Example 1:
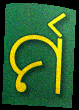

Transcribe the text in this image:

ର୍ମ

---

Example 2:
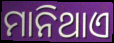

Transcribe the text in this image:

ମାନିଥାଏ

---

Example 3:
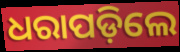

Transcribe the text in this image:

ଧରାପଡ଼ିଲେ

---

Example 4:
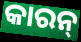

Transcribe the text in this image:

କାରନ୍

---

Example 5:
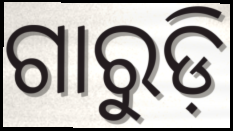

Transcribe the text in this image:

ଗାରୁଡ଼ି